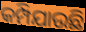
କମ୍ପିଯାଉଛି